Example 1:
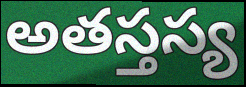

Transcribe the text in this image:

అతస్తస్య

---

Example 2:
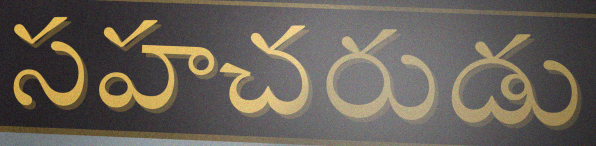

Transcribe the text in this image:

సహచరుడు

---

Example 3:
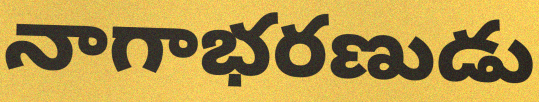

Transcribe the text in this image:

నాగాభరణుడు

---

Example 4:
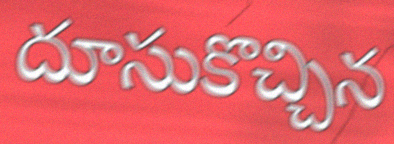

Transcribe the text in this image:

దూసుకొచ్చిన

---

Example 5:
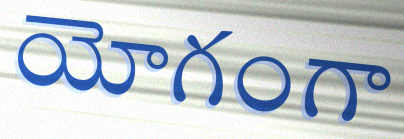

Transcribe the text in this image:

యోగంగా